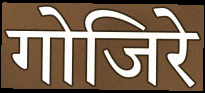
गोजिरे